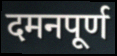
दमनपूर्ण